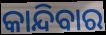
କାନ୍ଦିବାର